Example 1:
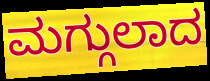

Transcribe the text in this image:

ಮಗ್ಗುಲಾದ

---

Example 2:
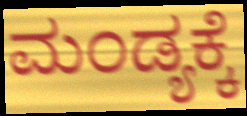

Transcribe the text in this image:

ಮಂಡ್ಯಕ್ಕೆ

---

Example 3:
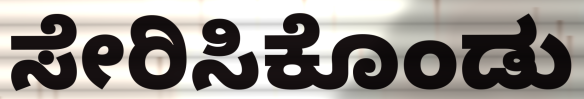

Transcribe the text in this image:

ಸೇರಿಸಿಕೊಂಡು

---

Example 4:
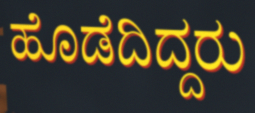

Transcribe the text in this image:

ಹೊಡೆದಿದ್ದರು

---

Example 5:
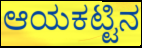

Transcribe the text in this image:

ಆಯಕಟ್ಟಿನ